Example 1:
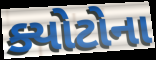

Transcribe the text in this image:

ક્યોટોના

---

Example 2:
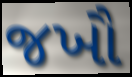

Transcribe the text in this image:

જખૌ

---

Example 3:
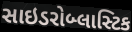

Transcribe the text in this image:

સાઇડરોબ્લાસ્ટિક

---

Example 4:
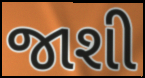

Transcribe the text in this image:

જાશી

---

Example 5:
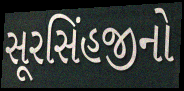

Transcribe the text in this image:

સૂરસિંહજીનો